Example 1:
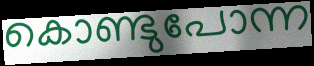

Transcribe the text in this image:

കൊണ്ടുപോന്ന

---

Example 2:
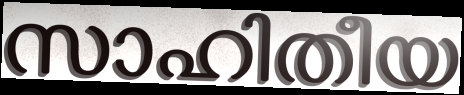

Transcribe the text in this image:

സാഹിതീയ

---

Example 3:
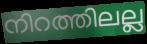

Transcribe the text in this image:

നിറത്തിലല്ല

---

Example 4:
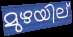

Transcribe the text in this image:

മുഴയില്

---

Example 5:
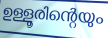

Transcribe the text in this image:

ഉള്ളൂരിന്റെയും